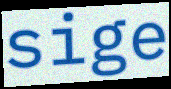
sige